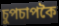
চুপচাপকৈ